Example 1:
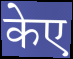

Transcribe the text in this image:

केए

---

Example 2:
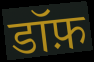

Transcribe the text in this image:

डॉफ़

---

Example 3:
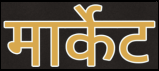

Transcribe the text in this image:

मार्केट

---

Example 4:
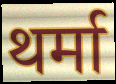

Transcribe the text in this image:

थर्मा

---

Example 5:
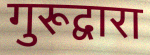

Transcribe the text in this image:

गुरूद्वारा